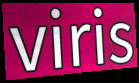
viris